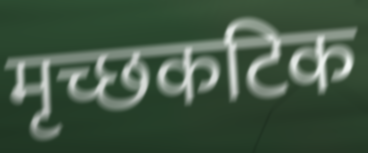
मृच्छकटिक